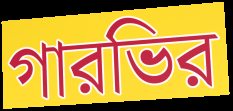
গারভির